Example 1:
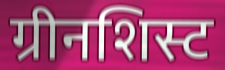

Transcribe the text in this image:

ग्रीनशिस्ट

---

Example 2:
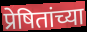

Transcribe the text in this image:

प्रेषितांच्या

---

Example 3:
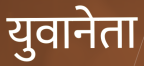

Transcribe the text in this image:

युवानेता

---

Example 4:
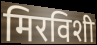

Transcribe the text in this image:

मिरविशी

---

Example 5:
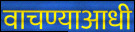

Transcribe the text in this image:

वाचण्याआधी